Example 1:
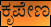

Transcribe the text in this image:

ಕೃಪೇಣ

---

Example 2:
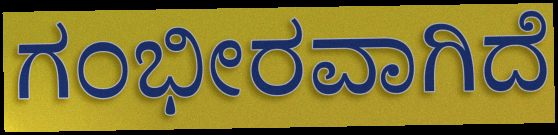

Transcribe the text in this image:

ಗಂಭೀರವಾಗಿದೆ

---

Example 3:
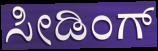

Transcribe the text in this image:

ಸೀಡಿಂಗ್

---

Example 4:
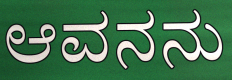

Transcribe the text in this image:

ಆವನನು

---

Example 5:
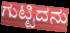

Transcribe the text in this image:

ಗುಟ್ಟಿದನು